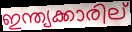
ഇന്ത്യക്കാരില്